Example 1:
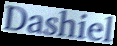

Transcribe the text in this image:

Dashiel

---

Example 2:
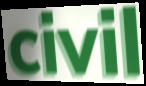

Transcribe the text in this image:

civil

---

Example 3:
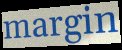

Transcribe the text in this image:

margin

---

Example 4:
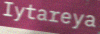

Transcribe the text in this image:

Iytareya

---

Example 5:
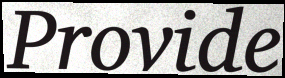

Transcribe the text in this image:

Provide